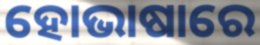
ହୋଭାଷାରେ